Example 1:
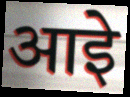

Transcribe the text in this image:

आइे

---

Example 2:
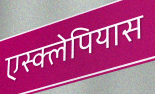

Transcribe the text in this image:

एस्क्लेपियास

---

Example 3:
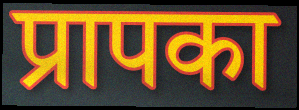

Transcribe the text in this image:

प्रापका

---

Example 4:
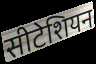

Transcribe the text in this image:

सीटेशियन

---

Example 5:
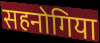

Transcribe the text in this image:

सहनोगिया